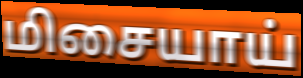
மிசையாய்